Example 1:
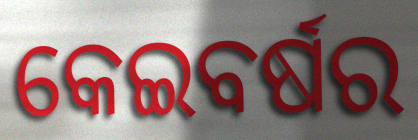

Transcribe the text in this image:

କେଇବର୍ଷର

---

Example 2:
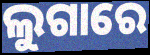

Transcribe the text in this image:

ଲୁଗାରେ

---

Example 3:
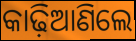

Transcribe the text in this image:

କାଢ଼ିଆଣିଲେ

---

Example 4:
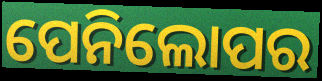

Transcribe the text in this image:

ପେନିଲୋପର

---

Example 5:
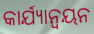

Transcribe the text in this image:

କାର୍ଯ୍ୟାନ୍ୱୟନ